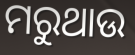
ମରୁଥାଉ